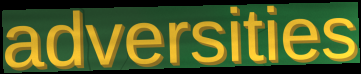
adversities